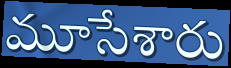
మూసేశారు